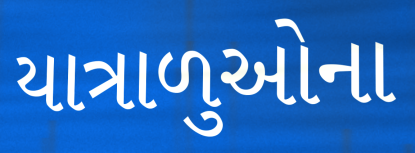
યાત્રાળુઓના